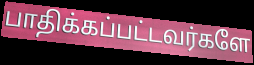
பாதிக்கப்பட்டவர்களே